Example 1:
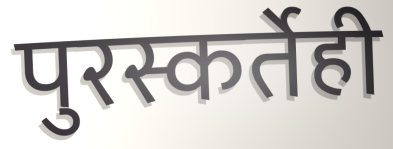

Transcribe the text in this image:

पुरस्कर्तेही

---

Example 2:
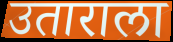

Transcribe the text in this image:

उताराला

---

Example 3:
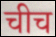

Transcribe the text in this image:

चीच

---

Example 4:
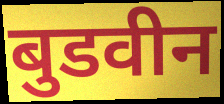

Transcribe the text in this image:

बुडवीन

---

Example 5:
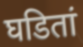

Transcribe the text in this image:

घडितां